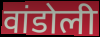
वांडोली